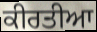
ਕੀਰਤੀਆ